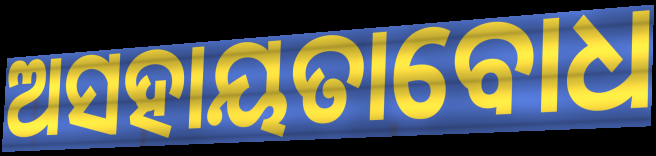
ଅସହାୟତାବୋଧ